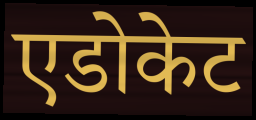
एडोकेट